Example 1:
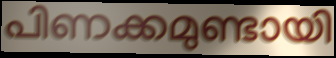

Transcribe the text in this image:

പിണക്കമുണ്ടായി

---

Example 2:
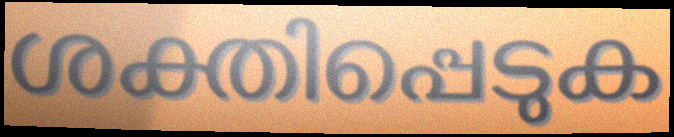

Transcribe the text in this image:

ശക്തിപ്പെടുക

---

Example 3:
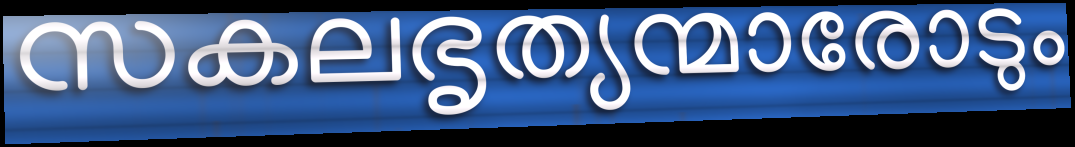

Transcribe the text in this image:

സകലഭൃത്യന്മാരോടും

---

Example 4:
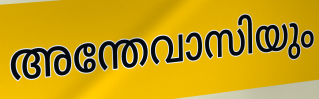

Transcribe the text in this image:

അന്തേവാസിയും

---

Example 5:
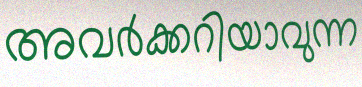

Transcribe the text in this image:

അവർക്കറിയാവുന്ന